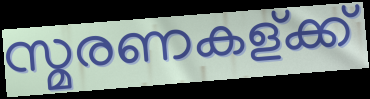
സ്മരണകള്ക്ക്